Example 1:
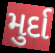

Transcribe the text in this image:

મુર્દા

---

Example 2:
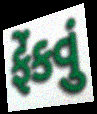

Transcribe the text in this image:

ફેંકવું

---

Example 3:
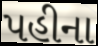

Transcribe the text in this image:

પહીના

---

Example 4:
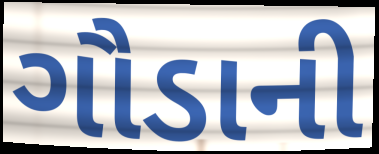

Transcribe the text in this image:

ગૌડાની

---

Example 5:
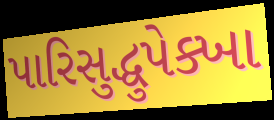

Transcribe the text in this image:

પારિસુદ્ધુપેક્ખા